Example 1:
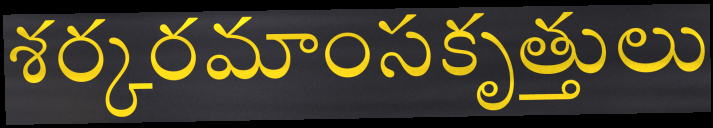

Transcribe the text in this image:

శర్కరమాంసకృత్తులు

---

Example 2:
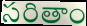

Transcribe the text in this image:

సరితాం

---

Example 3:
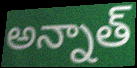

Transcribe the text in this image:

అన్నాత్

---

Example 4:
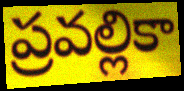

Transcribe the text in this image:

ప్రవల్లికా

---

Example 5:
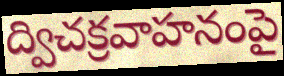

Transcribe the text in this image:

ద్విచక్రవాహనంపై